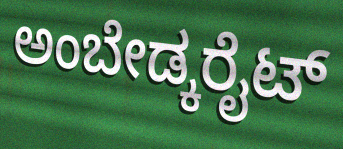
ಅಂಬೇಡ್ಕರೈಟ್